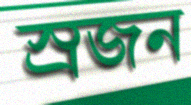
স্ৰজন